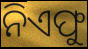
ନିଏଫୁ